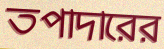
তপাদারের